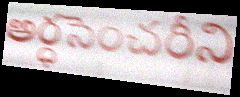
అర్ధసెంచరీని